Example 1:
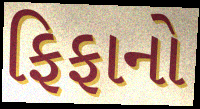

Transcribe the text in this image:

ફિફાનો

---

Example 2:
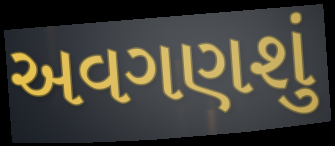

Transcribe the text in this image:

અવગણશું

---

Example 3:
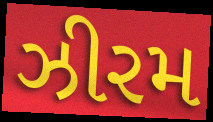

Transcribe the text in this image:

ઝીરમ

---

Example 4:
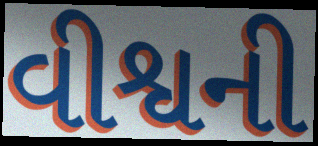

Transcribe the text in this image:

વીશ્વની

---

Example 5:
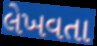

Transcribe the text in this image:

લેખવતા